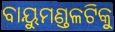
ବାୟୁମଣ୍ଡଳଟିକୁ